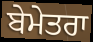
ਬੇਮੇਤਰਾ